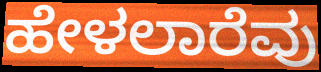
ಹೇಳಲಾರೆವು